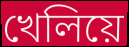
খেলিয়ে